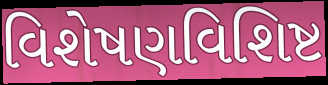
વિશેષણવિશિષ્ટ